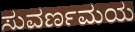
ಸುವರ್ಣಮಯ